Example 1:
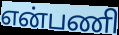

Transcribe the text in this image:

என்பணி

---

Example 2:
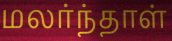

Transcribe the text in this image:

மலர்ந்தாள்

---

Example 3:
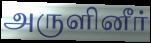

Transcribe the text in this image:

அருளினீர்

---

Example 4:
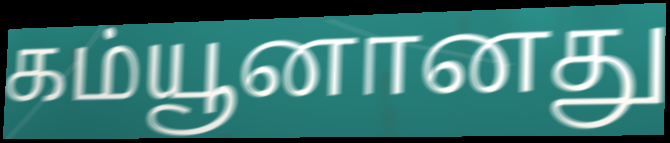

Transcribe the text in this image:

கம்யூனானது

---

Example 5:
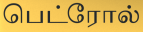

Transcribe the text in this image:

பெட்ரோல்